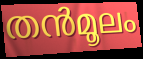
തൻമൂലം